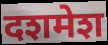
दशमेश